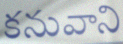
కనువాని